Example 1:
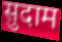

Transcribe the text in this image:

सुदाम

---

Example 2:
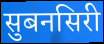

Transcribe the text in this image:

सुबनसिरी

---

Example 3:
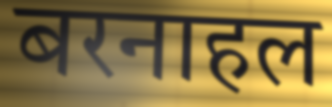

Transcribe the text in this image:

बरनाहल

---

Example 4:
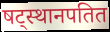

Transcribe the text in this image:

षट्स्थानपतित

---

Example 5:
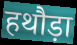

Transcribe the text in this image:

हथौड़ा